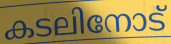
കടലിനോട്